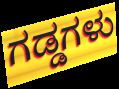
ಗಡ್ಡಗಳು